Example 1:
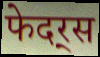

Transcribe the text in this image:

फेदर्स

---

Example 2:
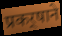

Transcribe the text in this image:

प्रकर्षाने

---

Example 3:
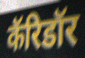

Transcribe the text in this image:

कॅरिडॉर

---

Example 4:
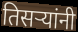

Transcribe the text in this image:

तिसऱ्यांनी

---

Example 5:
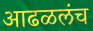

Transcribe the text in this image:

आढळलंच